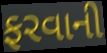
ફરવાની